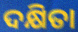
ଦକ୍ଷିତା